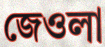
জেওলা